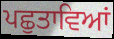
ਪਛੁਤਾਵਿਆਂ